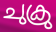
ചുക്രു